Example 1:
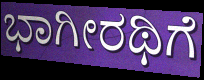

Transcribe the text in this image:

ಭಾಗೀರಥಿಗೆ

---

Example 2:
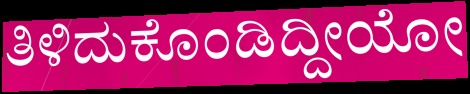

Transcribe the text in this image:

ತಿಳಿದುಕೊಂಡಿದ್ದೀಯೋ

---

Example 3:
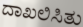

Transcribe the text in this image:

ದಾಖಲಿಸಿತು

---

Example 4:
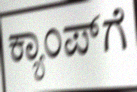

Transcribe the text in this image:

ಕ್ಯಾಂಪ್‍ಗೆ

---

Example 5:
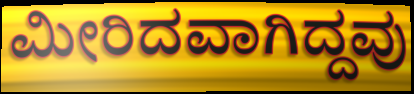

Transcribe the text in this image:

ಮೀರಿದವಾಗಿದ್ದವು